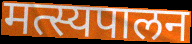
मत्स्यपालन